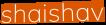
shaishav